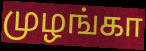
முழங்கா